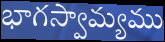
భాగస్వామ్యము